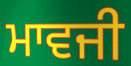
ਮਾਵਜੀ